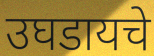
उघडायचे